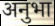
अनुभा